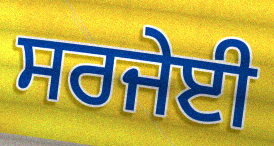
ਸਰਜੇਈ